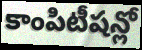
కాంపిటీషన్లో